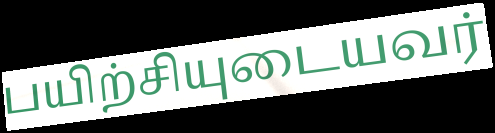
பயிற்சியுடையவர்